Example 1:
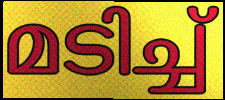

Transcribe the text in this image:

മടിച്ച്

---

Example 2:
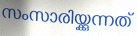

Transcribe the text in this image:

സംസാരിയ്ക്കുന്നത്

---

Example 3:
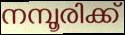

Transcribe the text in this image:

നമ്പൂരിക്ക്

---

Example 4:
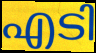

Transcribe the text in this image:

എടി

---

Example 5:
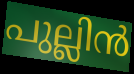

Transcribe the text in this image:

പുല്ലിൻ